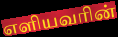
எளியவரின்